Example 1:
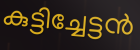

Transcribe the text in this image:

കുട്ടിച്ചേട്ടൻ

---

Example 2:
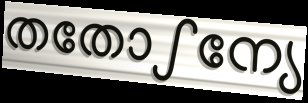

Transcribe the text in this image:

തതോഽന്യേ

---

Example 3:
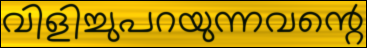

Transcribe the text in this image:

വിളിച്ചുപറയുന്നവന്റെ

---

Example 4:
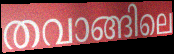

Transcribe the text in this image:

തവാങ്ങിലെ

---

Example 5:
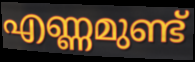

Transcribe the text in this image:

എണ്ണമുണ്ട്